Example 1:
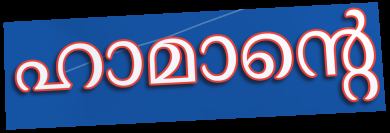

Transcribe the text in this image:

ഹാമാന്റെ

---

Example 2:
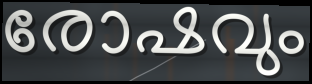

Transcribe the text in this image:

രോഷവും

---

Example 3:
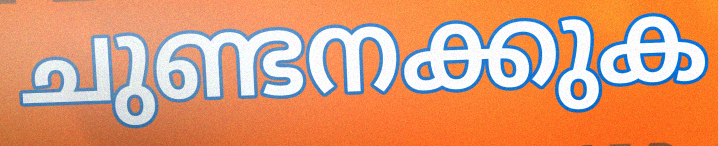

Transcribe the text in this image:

ചുണ്ടനക്കുക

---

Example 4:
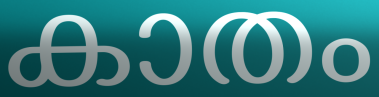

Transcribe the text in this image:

കാതം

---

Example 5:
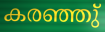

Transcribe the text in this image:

കരഞ്ഞു്